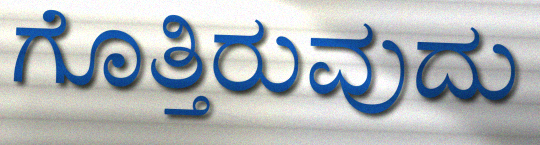
ಗೊತ್ತಿರುವುದು